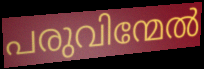
പരുവിന്മേൽ